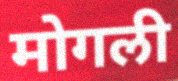
मोगली